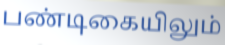
பண்டிகையிலும்